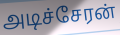
அடிச்சேரன்